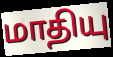
மாதியு